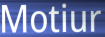
Motiur